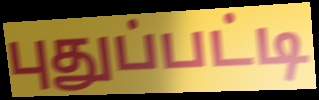
புதுப்பட்டி